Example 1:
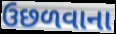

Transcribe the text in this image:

ઉછળવાના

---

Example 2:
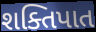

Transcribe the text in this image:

શક્તિપાત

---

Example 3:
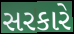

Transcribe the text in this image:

સરકારે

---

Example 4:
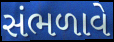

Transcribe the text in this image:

સંભળાવે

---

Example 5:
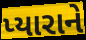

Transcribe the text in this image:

પ્યારાને